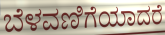
ಬೆಳವಣಿಗೆಯಾದರೆ